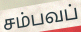
சம்பவப்